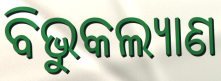
ବିଭୁକଲ୍ୟାଣ